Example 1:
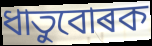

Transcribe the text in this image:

ধাতুবোৰক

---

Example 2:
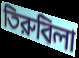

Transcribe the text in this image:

তিৰুবিলা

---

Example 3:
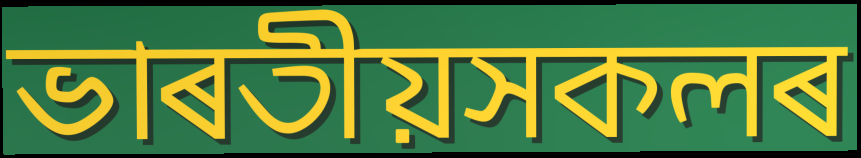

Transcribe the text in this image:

ভাৰতীয়সকলৰ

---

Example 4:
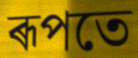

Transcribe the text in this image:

ৰূপতে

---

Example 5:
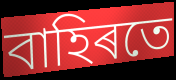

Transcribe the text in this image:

বাহিৰতে